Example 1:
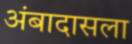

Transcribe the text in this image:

अंबादासला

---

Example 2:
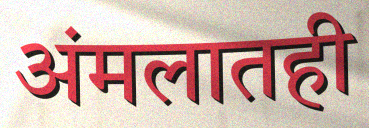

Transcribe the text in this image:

अंमलातही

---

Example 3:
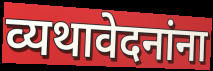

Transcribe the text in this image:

व्यथावेदनांना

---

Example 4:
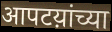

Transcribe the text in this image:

आपटय़ांच्या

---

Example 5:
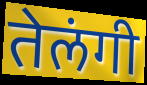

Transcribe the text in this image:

तेलंगी